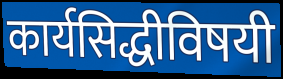
कार्यसिद्धीविषयी